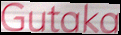
Gutaka